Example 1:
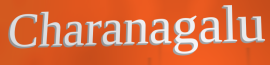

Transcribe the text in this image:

Charanagalu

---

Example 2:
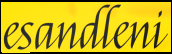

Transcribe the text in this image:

esandleni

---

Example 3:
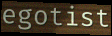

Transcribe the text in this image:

egotist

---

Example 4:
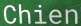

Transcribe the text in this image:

Chien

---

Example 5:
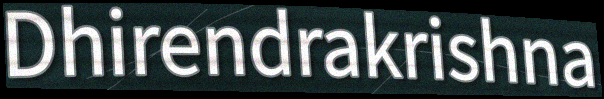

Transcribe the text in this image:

Dhirendrakrishna